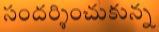
సందర్శించుకున్న